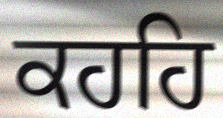
ਕਹਹਿ